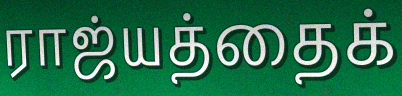
ராஜ்யத்தைக்